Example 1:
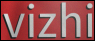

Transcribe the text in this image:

vizhi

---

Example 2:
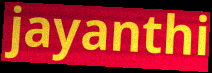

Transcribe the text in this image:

jayanthi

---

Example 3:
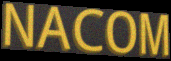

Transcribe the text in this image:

NACOM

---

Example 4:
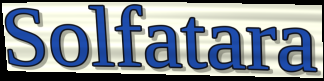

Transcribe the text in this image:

Solfatara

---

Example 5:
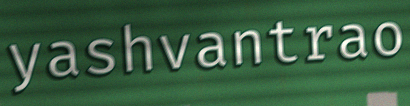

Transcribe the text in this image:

yashvantrao